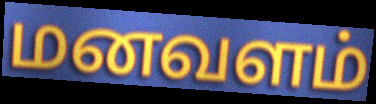
மனவளம்